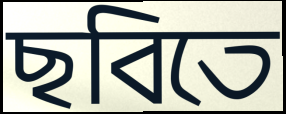
ছবিতে